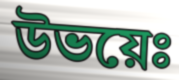
উভয়েঃ